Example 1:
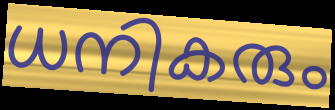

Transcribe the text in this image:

ധനികരും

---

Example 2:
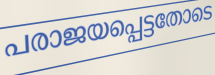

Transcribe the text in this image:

പരാജയപ്പെട്ടതോടെ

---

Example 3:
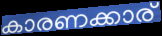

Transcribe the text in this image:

കാരണക്കാര്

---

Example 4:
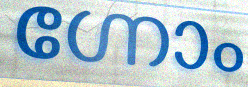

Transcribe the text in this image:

ഗ്നോം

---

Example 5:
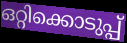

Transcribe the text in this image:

ഒറ്റിക്കൊടുപ്പ്